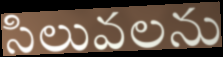
సిలువలను